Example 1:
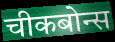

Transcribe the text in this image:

चीकबोन्स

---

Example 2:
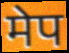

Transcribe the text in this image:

मेप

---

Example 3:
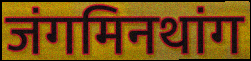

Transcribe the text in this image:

जंगमिनथांग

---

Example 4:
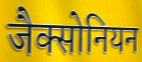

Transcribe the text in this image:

जैक्सोनियन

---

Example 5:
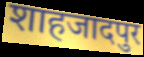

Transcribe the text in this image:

शाहजादपुर